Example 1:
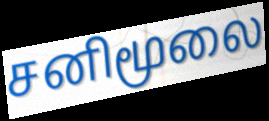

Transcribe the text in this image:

சனிமூலை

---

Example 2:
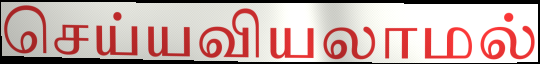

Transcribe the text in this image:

செய்யவியலாமல்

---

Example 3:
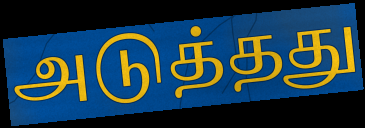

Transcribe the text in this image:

அடுத்தது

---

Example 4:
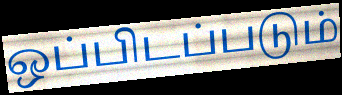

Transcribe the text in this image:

ஒப்பிடப்படும்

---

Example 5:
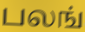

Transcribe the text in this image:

பலங்